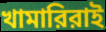
খামারিরাই